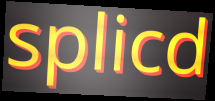
splicd